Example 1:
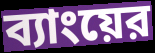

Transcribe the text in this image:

ব্যাংয়ের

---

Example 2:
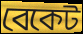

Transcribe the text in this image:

বেকেট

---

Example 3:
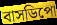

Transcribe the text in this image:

বাসডিপো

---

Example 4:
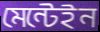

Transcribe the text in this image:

মেন্টেইন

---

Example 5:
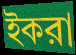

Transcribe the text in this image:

ইকরা